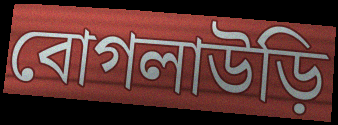
বোগলাউড়ি